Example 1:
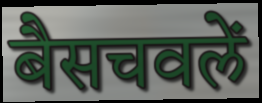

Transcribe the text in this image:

बैसचवलें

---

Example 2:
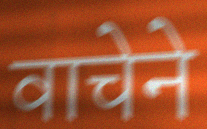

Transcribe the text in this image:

वाचेने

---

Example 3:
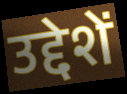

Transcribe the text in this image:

उद्देशें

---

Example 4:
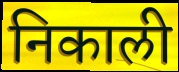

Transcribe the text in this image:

निकाली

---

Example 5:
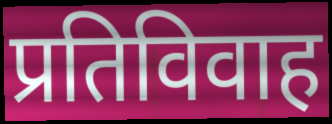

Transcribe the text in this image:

प्रतिविवाह